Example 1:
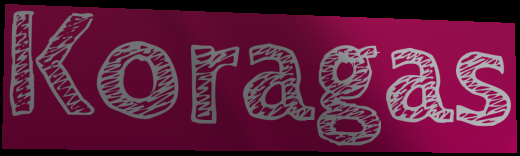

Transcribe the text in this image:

Koragas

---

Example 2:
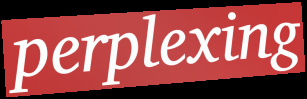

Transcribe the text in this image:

perplexing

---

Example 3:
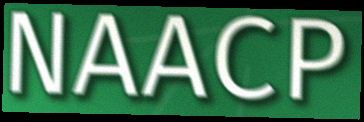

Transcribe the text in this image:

NAACP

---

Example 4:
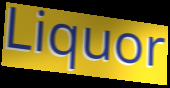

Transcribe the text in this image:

Liquor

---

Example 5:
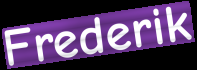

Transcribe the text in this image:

Frederik